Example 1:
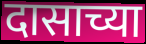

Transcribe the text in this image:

दासाच्या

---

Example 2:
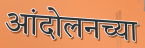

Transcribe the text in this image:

आंदोलनच्या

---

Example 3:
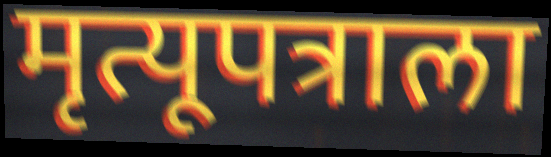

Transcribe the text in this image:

मृत्यूपत्राला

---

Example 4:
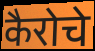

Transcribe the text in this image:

कैरोचे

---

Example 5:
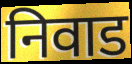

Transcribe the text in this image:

निवाड